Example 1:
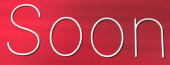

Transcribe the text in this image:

Soon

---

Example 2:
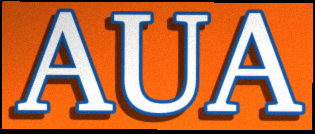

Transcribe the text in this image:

AUA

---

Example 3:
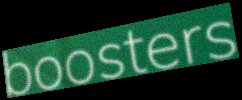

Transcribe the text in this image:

boosters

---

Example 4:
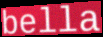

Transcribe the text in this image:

bella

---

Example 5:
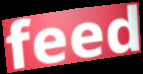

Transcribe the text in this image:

feed